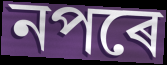
নপৰে